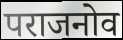
पराजनोव